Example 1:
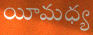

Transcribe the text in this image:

యీమధ్య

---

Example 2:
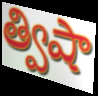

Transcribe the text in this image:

త్విషా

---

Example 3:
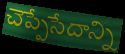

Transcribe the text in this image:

చెప్పేసేదాన్ని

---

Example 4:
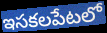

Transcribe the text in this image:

ఇసకలపేటలో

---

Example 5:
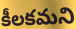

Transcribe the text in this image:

కీలకమని